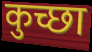
कुच्छा